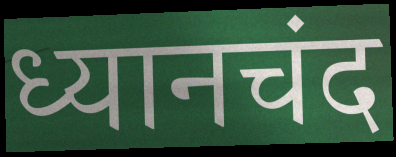
ध्यानचंद